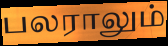
பலராலும்